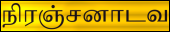
நிரஞ்சனாடவ